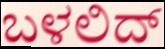
ಬಳಲಿದ್